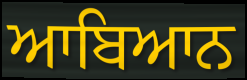
ਆਬਿਆਨ